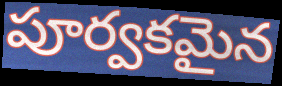
పూర్వకమైన